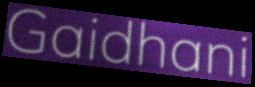
Gaidhani